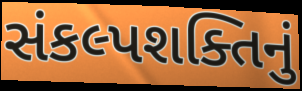
સંકલ્પશક્તિનું